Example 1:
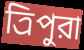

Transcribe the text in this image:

ত্রিপুরা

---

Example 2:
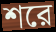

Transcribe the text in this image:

শরে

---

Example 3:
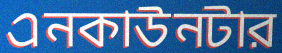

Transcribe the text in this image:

এনকাউনটার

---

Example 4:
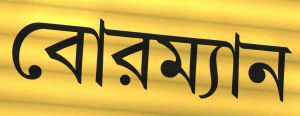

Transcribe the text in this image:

বোরম্যান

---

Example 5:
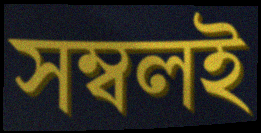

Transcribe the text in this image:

সম্বলই